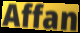
Affan